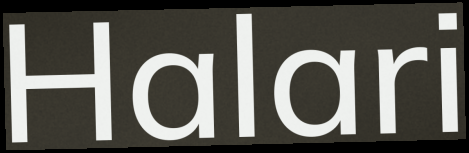
Halari